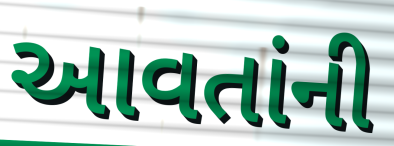
આવતાંની